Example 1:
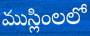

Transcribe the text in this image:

ముస్లింలలో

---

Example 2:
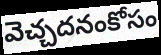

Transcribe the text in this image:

వెచ్చదనంకోసం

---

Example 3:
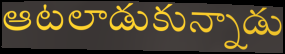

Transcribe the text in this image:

ఆటలాడుకున్నాడు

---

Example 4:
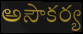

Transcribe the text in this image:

అసౌకర్య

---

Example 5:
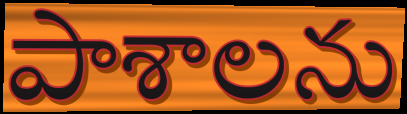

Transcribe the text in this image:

పాశాలను